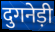
दुगनेड़ी